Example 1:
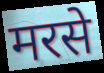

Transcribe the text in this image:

मरसे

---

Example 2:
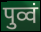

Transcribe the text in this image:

पुव्वं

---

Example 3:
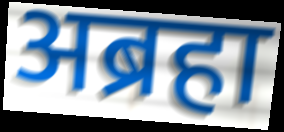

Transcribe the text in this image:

अब्रहा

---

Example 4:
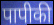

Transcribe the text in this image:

पापीकी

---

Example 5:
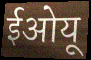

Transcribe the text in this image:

ईओयू